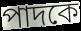
পাদকে